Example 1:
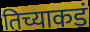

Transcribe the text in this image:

तिच्याकडं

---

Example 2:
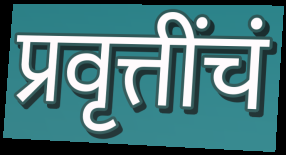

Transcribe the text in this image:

प्रवृत्तींचं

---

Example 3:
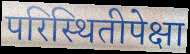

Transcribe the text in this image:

परिस्थितीपेक्षा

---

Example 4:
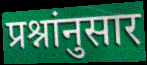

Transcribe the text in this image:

प्रश्नांनुसार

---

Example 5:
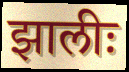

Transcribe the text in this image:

झालीः